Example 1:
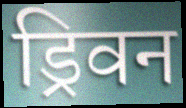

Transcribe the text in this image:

ड्रिवन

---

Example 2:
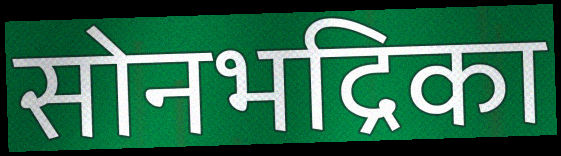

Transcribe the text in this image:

सोनभद्रिका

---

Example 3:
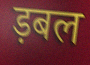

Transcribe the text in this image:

ड़बल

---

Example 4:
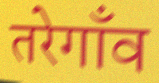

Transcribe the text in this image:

तरेगाँव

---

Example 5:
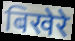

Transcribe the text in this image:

बिखेरे